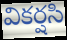
వికర్షసి